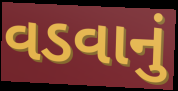
વડવાનું